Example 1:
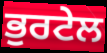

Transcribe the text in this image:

ਭੁਰਟੇਲ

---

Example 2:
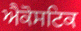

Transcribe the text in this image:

ਐਕੋਸਟਿਕ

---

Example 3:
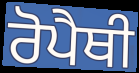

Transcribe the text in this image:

ਰੋਪੈਥੀ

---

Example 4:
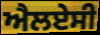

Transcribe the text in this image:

ਐਲਏਸੀ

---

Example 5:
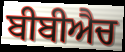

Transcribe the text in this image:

ਬੀਬੀਐਚ